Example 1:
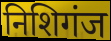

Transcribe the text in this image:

निशिगंज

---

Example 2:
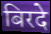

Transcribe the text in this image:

बिरदे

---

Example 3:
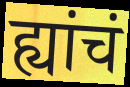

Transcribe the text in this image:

ह्यांचं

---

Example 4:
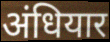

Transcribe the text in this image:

अंधियार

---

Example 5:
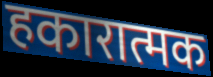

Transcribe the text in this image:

हकारात्मक